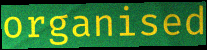
organised